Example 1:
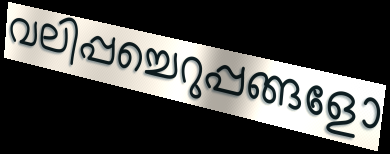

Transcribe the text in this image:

വലിപ്പച്ചെറുപ്പങ്ങളോ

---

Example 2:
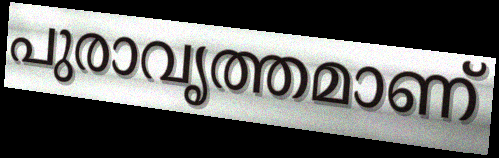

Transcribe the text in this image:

പുരാവൃത്തമാണ്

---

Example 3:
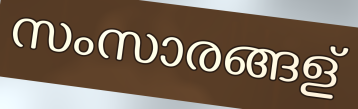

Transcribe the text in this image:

സംസാരങ്ങള്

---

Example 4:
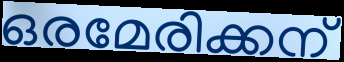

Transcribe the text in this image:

ഒരമേരിക്കന്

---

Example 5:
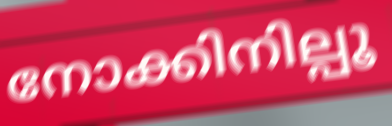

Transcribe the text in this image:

നോക്കിനില്പൂ